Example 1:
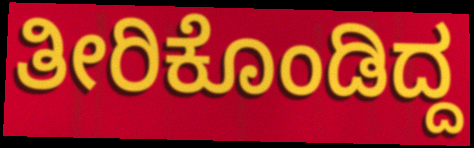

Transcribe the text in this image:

ತೀರಿಕೊಂಡಿದ್ದ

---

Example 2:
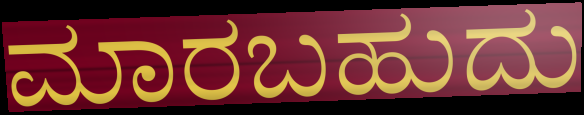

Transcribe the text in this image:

ಮಾರಬಹುದು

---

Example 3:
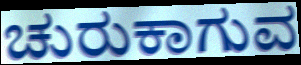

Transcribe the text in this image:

ಚುರುಕಾಗುವ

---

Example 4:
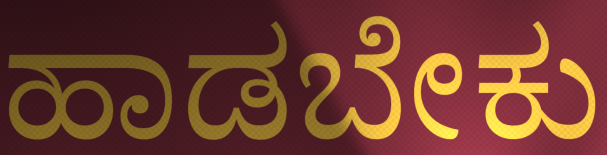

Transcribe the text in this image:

ಹಾಡಬೇಕು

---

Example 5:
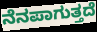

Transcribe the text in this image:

ನೆನಪಾಗುತ್ತದೆ